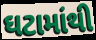
ઘટામાંથી